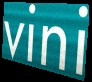
vini